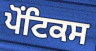
ਪੋਂਟਿਕਸ